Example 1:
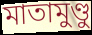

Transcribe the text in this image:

মাতামুণ্ডু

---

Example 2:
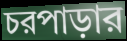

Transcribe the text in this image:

চরপাড়ার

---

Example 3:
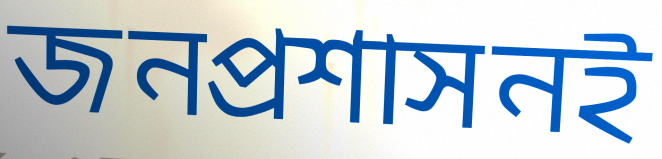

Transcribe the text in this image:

জনপ্রশাসনই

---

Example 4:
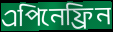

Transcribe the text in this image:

এপিনেফ্রিন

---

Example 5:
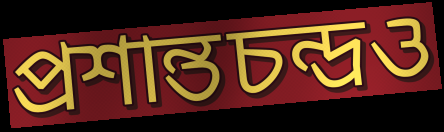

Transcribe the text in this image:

প্রশান্তচন্দ্রও